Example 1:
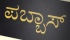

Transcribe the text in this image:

ಪಬ್ಬಾಸ್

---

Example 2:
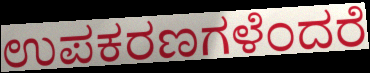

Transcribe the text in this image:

ಉಪಕರಣಗಳೆಂದರೆ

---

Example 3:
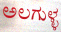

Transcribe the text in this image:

ಅಲಗುಳ್ಳ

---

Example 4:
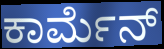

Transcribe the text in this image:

ಕಾರ್ಮೆನ್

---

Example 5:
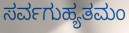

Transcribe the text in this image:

ಸರ್ವಗುಹ್ಯತಮಂ